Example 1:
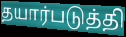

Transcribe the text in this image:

தயார்படுத்தி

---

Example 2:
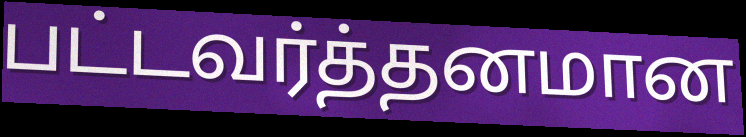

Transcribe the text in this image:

பட்டவர்த்தனமான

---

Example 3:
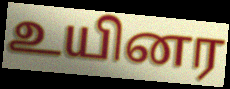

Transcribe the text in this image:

உயினர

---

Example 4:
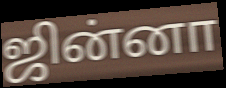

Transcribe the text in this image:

ஜின்னா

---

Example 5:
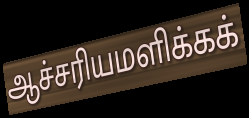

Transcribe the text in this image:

ஆச்சரியமளிக்கக்